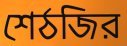
শেঠজির